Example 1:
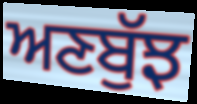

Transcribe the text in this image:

ਅਣਬੁੱਝ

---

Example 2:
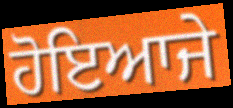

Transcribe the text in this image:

ਹੋਇਆਜੇ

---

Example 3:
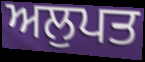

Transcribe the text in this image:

ਅਲੁਪਤ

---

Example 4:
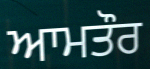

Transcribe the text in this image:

ਆਮਤੌਰ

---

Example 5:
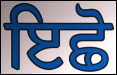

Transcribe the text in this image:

ਇਛੋ